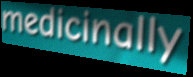
medicinally